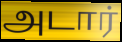
அடார்